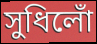
সুধিলোঁ